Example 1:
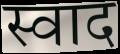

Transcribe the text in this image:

स्वाद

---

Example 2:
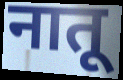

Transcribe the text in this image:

नातू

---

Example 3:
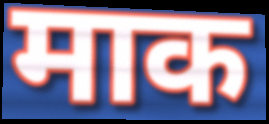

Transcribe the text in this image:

माक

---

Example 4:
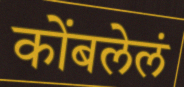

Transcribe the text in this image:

कोंबलेलं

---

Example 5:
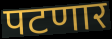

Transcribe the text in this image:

पटणार